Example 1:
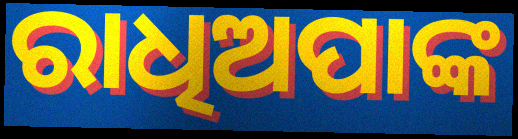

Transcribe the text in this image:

ରାଧିଅପାଙ୍କ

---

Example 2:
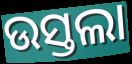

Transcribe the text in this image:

ଉସ୍ତଲା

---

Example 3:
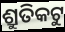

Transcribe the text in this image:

ଶ୍ରୁତିକଟୁ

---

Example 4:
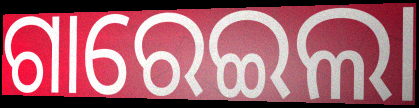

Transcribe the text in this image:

ଗାରେଇଲା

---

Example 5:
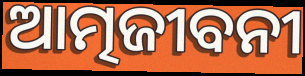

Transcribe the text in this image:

ଆତ୍ମଜୀବନୀ